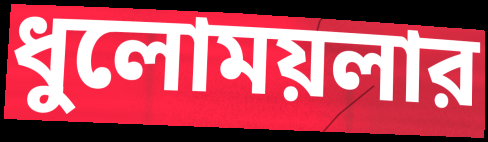
ধুলোময়লার